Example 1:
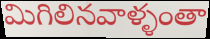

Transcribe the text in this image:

మిగిలినవాళ్ళంతా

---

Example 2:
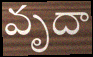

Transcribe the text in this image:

వృదా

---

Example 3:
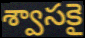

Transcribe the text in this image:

శ్వాసకై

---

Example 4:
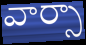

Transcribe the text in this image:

వార్సా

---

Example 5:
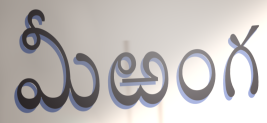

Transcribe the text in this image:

మీఱంగ